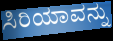
ಸಿರಿಯಾವನ್ನು